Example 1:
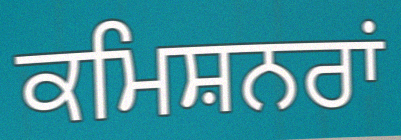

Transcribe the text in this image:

ਕਮਿਸ਼ਨਰਾਂ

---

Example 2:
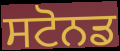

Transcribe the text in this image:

ਸਟੋਨਡ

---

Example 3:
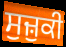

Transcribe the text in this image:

ਸੁਜ਼ੁਕੀ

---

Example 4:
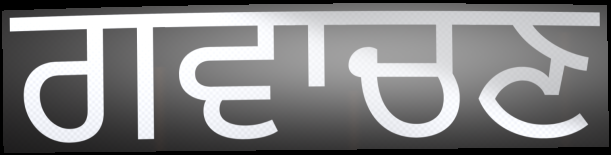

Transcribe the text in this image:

ਗਵਾਚਣ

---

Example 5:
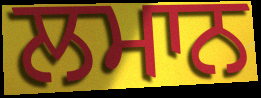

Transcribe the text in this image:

ਲਮਾਨ